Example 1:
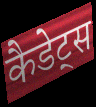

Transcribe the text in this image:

कैडेट्स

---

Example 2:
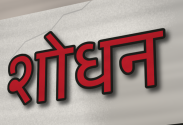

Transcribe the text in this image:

शोधन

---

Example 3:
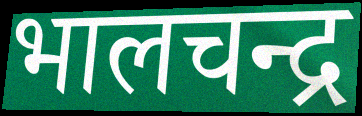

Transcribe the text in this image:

भालचन्द्र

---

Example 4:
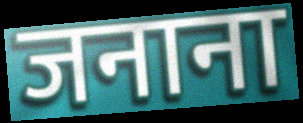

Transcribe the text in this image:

जनाना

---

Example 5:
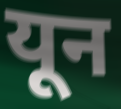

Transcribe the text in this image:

यून